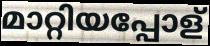
മാറ്റിയപ്പോള്